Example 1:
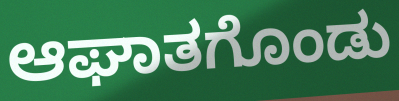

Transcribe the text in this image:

ಆಘಾತಗೊಂಡು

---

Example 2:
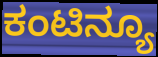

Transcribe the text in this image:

ಕಂಟಿನ್ಯೂ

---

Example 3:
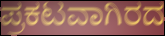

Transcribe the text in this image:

ಪ್ರಕಟವಾಗಿರದ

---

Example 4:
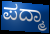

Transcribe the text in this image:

ಪದ್ಮಾ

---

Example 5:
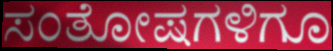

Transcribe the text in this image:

ಸಂತೋಷಗಳಿಗೂ